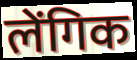
लेंगिक